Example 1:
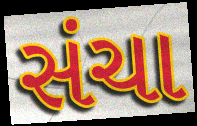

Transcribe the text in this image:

સંચા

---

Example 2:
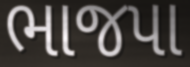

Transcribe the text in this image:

ભાજપા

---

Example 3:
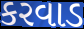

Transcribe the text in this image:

કરવાડ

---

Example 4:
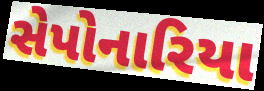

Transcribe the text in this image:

સેપોનારિયા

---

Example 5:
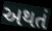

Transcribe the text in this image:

અથતં